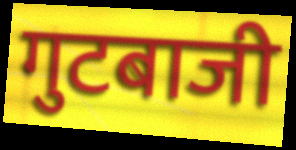
गुटबाजी